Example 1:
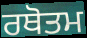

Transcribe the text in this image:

ਰਥੋਤਮ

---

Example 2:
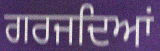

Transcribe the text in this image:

ਗਰਜਦਿਆਂ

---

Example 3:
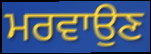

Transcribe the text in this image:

ਮਰਵਾਉਣ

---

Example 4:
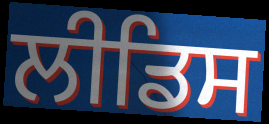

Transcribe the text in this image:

ਲੀਡਿਸ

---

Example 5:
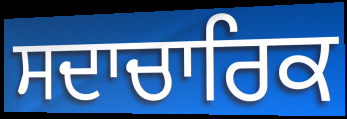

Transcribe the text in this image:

ਸਦਾਚਾਰਿਕ